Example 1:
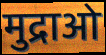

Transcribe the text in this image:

मुद्राओ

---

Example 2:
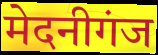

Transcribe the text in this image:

मेदनीगंज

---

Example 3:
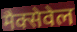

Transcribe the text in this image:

मैक्सेवेल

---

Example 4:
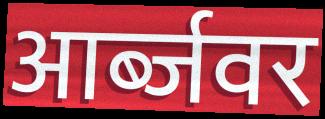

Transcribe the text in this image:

आर्ब्जवर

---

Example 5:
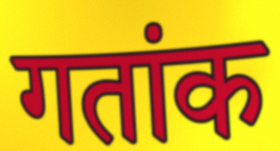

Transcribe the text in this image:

गतांक